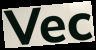
Vec